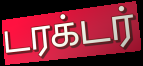
டரக்டர்